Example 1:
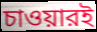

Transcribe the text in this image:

চাওয়ারই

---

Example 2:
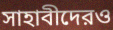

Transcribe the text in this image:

সাহাবীদেরও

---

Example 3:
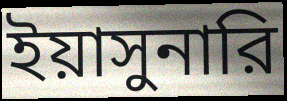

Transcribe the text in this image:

ইয়াসুনারি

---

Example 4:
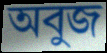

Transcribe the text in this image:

অবুজ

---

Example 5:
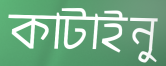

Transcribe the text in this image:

কাটাইনু